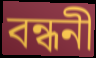
বন্ধনী